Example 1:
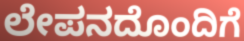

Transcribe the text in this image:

ಲೇಪನದೊಂದಿಗೆ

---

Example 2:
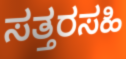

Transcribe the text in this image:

ಸತ್ತರಸಹಿ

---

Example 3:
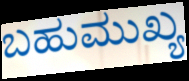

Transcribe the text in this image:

ಬಹುಮುಖ್ಯ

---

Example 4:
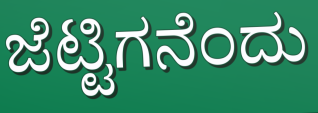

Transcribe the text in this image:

ಜೆಟ್ಟಿಗನೆಂದು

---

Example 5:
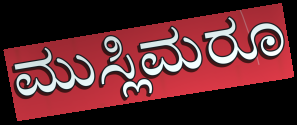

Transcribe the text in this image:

ಮುಸ್ಲಿಮರೂ